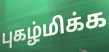
புகழ்மிக்க